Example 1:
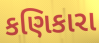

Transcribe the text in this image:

કણિકારા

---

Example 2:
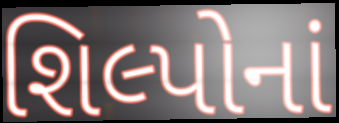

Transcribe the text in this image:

શિલ્પોનાં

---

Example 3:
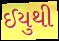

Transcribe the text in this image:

ઈયુથી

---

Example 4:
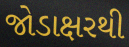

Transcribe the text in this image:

જોડાક્ષરથી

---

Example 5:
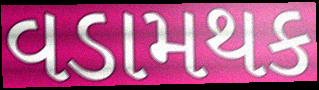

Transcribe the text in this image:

વડામથક